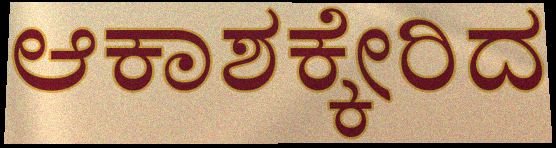
ಆಕಾಶಕ್ಕೇರಿದ